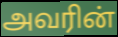
அவரின்